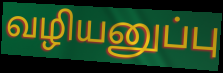
வழியனுப்பு